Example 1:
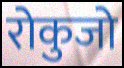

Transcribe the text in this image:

रोकुजो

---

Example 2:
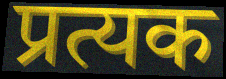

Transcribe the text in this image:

प्रत्यक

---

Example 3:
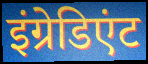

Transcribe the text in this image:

इंग्रेडिएंट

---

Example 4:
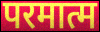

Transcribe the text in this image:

परमात्म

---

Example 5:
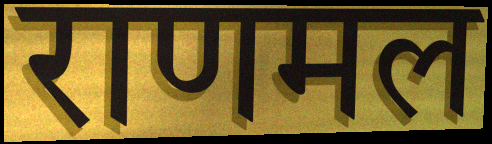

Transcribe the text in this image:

राणमल